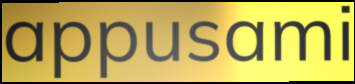
appusami